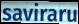
saviraru